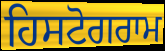
ਹਿਸਟੋਗਰਾਮ